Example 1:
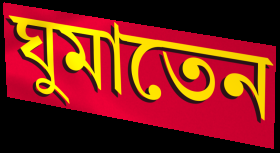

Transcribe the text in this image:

ঘুমাতেন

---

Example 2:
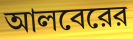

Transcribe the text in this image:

আলবেরের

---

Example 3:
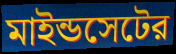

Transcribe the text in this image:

মাইন্ডসেটের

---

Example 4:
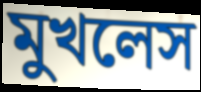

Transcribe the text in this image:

মুখলেস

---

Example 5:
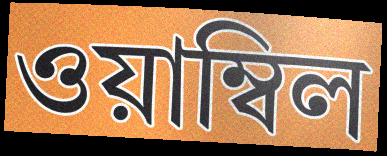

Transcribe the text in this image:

ওয়াম্বিল